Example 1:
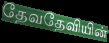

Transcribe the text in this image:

தேவதேவியின்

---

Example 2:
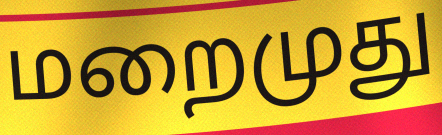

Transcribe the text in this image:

மறைமுது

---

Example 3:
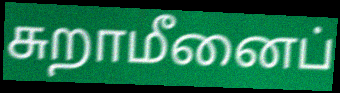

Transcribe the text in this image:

சுறாமீனைப்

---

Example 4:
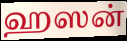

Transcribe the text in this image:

ஹஸன்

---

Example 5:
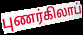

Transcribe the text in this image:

புணர்கிலாப்